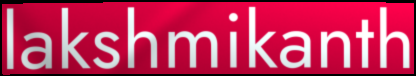
lakshmikanth